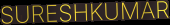
SURESHKUMAR